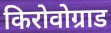
किरोवोग्राड